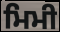
ਮਿਮੀ